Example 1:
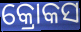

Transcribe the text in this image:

କ୍ରୋକସ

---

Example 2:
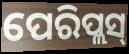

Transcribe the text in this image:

ପେରିପ୍ଲସ୍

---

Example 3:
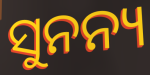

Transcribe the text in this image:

ସୁନନ୍ୟ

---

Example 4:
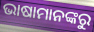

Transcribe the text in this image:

ଭାଷାମାନଙ୍କରୁ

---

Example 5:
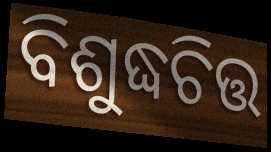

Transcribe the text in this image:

ବିଶୁଦ୍ଧଚିତ୍ତ